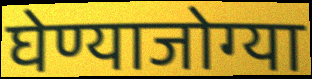
घेण्याजोग्या